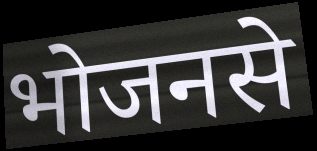
भोजनसे